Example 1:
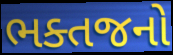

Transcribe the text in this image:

ભક્તજનો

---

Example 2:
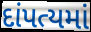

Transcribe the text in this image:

દાંપત્યમાં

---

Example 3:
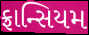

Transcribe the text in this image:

ફ્રાન્સિયમ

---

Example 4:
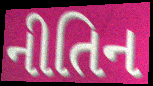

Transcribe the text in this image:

નીતિન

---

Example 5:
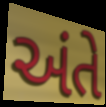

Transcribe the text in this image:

અંતે